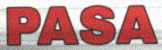
PASA